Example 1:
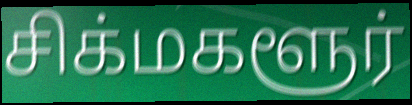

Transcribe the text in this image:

சிக்மகளூர்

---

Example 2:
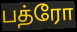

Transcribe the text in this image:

பத்ரோ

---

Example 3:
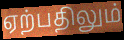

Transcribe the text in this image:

ஏற்பதிலும்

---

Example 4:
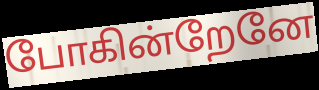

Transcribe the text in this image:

போகின்றேனே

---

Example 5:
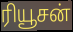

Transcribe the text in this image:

ரியூசன்